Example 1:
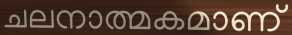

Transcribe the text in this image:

ചലനാത്മകമാണ്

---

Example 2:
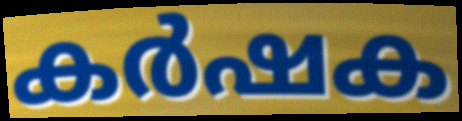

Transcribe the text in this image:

കർഷക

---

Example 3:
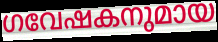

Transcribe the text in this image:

ഗവേഷകനുമായ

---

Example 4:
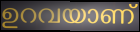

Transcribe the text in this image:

ഉറവയാണ്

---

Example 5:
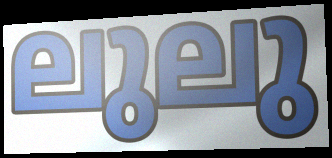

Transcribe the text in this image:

ലുലു